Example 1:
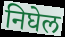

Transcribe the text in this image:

निघेल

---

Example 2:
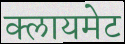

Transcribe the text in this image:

क्लायमेट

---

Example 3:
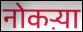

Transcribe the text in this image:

नोकऱ्‍या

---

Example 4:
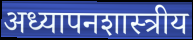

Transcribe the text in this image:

अध्यापनशास्त्रीय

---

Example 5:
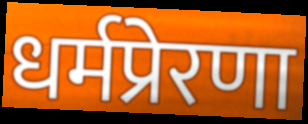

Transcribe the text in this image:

धर्मप्रेरणा